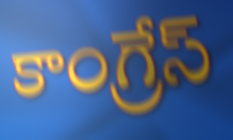
కాంగ్రేస్